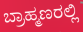
ಬ್ರಾಹ್ಮಣರಲ್ಲಿ